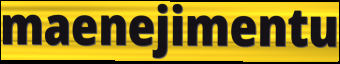
maenejimentu